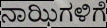
ನಾಝಿಗಳಿಗೆ